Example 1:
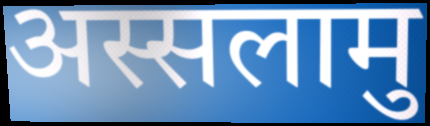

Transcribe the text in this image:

अस्सलामु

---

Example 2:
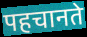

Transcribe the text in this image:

पहचानते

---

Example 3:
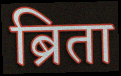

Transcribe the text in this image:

ब्रिता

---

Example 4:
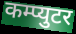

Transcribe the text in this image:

कम्प्युटर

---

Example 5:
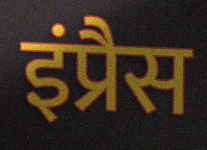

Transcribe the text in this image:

इंप्रैस